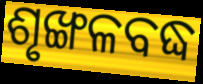
ଶୃଙ୍ଖଳବଦ୍ଧ